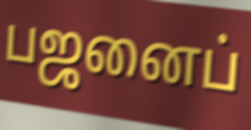
பஜனைப்